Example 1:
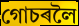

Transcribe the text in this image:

গোচৰলৈ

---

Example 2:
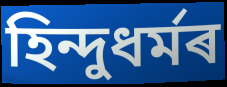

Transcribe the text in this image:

হিন্দুধৰ্মৰ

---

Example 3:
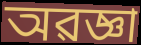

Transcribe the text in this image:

অৱজ্ঞা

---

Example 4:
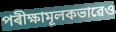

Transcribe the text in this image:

পৰীক্ষামূলকভাৱেও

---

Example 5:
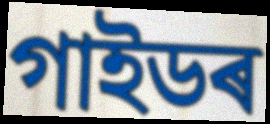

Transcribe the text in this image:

গাইডৰ